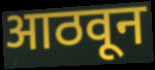
आठवून